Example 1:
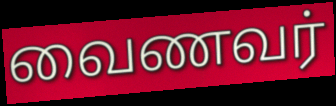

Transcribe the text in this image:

வைணவர்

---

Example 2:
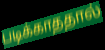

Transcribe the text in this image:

படிக்காததால்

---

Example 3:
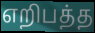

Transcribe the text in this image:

எறிபத்த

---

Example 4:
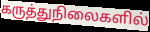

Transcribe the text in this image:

கருத்துநிலைகளில்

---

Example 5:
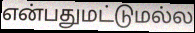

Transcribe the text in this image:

என்பதுமட்டுமல்ல